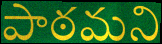
పాఠమని